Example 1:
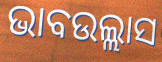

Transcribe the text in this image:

ଭାବଉଲ୍ଲାସ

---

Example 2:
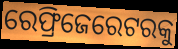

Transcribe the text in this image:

ରେଫ୍ରିଜେରେଟରକୁ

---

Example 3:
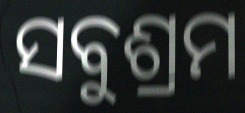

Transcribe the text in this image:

ସବୁଶ୍ରମ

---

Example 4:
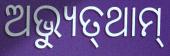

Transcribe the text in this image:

ଅଭ୍ୟୁତ୍‌ଥାମ୍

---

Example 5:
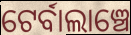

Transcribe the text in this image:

ଟେର୍ବାଲାଞ୍ଚେ